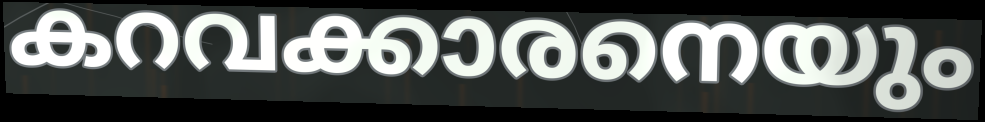
കറവക്കാരനെയും